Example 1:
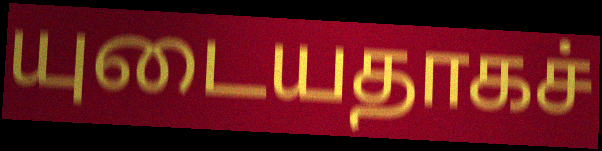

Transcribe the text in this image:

யுடையதாகச்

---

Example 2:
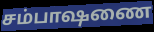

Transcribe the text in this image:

சம்பாஷணை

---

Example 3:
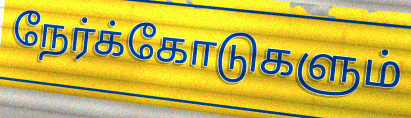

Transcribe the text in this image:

நேர்க்கோடுகளும்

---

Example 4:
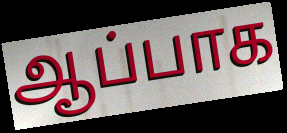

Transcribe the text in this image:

ஆப்பாக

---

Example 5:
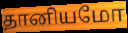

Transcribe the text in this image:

தானியமோ